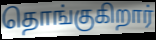
தொங்குகிறார்